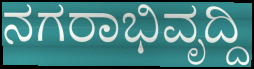
ನಗರಾಭಿವೃದ್ದಿ